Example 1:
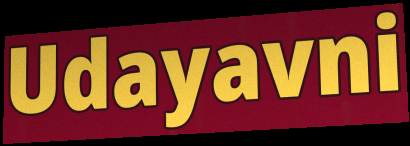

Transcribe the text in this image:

Udayavni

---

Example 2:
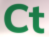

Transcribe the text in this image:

Ct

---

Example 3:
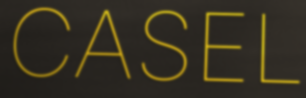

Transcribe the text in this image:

CASEL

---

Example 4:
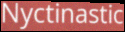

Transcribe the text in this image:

Nyctinastic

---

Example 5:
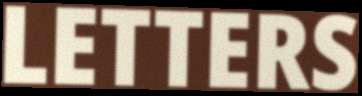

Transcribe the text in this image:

LETTERS